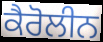
ਕੈਰੋਲੀਨ